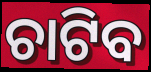
ଚାଟିବ